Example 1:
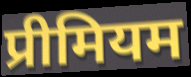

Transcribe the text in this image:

प्रीमियम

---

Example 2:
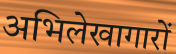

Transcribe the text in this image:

अभिलेखागारों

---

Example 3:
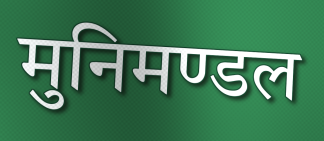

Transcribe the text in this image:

मुनिमण्डल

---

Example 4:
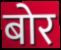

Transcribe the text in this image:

बोर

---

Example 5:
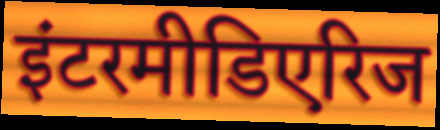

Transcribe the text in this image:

इंटरमीडिएरिज